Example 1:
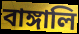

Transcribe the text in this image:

বাঙ্গালি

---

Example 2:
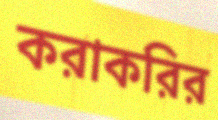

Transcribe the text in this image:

করাকরির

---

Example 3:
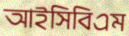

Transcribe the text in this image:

আইসিবিএম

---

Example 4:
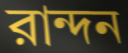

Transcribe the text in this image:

রান্দন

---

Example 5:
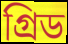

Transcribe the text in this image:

গ্রিড